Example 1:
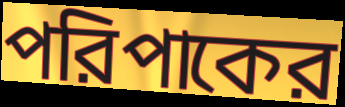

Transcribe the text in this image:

পরিপাকের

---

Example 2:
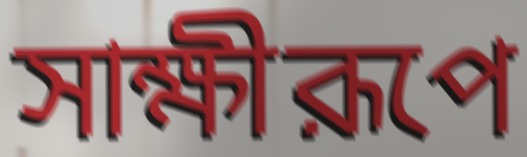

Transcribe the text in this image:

সাক্ষীরূপে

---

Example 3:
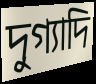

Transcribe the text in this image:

দুগ্যাদি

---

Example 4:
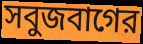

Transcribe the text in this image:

সবুজবাগের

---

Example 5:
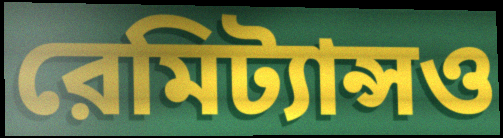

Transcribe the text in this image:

রেমিট্যান্সও